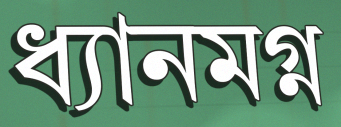
ধ্যানমগ্ন